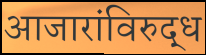
आजारांविरुद्ध